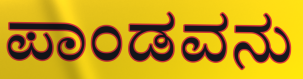
ಪಾಂಡವನು